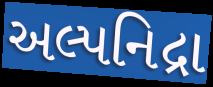
અલ્પનિદ્રા